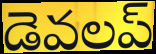
డెవలప్